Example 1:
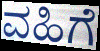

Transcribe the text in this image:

ವಹಿಗೆ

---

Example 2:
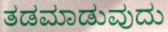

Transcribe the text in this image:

ತಡಮಾಡುವುದು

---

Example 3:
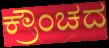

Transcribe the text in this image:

ಕ್ರೌಂಚದ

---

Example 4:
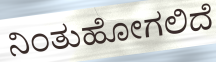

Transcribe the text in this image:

ನಿಂತುಹೋಗಲಿದೆ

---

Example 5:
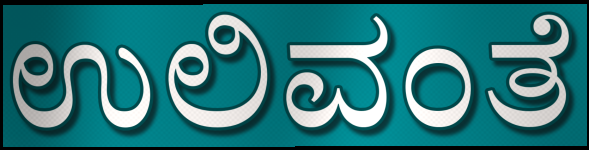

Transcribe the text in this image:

ಉಲಿವಂತೆ